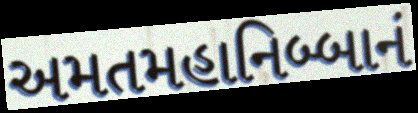
અમતમહાનિબ્બાનં